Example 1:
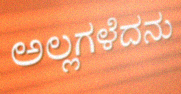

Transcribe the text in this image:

ಅಲ್ಲಗಳೆದನು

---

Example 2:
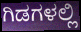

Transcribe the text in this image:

ಗಿಡಗಳಲ್ಲಿ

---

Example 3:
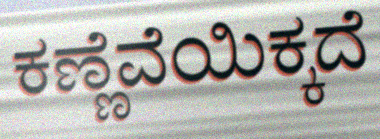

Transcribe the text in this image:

ಕಣ್ಣೆವೆಯಿಕ್ಕದೆ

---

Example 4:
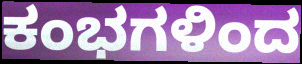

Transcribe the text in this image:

ಕಂಭಗಳಿಂದ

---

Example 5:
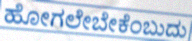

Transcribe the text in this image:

ಹೋಗಲೇಬೇಕೆಂಬುದು